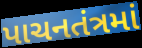
પાચનતંત્રમાં